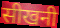
सीखनी